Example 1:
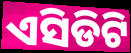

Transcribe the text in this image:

ଏସିଡିଟି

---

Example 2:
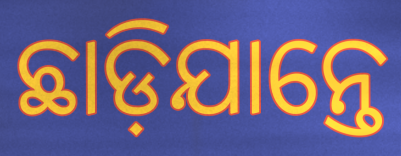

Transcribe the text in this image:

ଛାଡ଼ିଯାନ୍ତେ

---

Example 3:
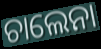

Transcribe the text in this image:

ଚାଲେନା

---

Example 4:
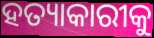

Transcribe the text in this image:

ହତ୍ୟାକାରୀକୁ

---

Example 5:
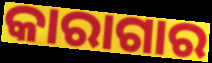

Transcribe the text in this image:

କାରାଗାର